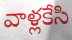
వాళ్లకేసి